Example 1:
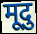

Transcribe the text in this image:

मूदु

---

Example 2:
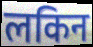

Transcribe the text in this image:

लकिन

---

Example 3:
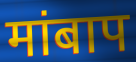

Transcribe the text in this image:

मांबाप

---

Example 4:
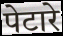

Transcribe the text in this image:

पेटारे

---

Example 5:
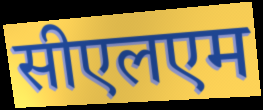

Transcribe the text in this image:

सीएलएम